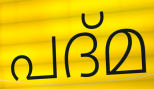
പദ്മ